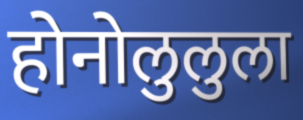
होनोलुलुला